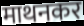
माथनकर